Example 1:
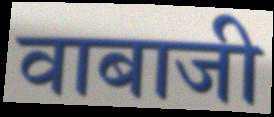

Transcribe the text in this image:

वाबाजी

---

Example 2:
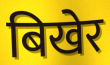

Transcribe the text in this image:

बिखेर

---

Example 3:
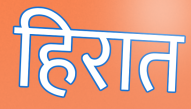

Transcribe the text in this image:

हिरात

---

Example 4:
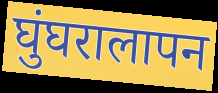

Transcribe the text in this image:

घुंघरालापन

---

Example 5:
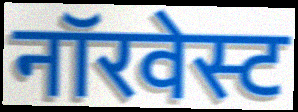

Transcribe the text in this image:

नॉरवेस्ट